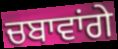
ਚਬਾਵਾਂਗੇ